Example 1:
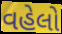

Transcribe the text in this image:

વહેલો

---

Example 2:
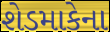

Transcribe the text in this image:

શેડમાકેના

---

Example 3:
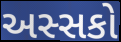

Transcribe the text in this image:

અસ્સકો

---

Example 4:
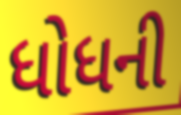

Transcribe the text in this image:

ધોધની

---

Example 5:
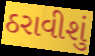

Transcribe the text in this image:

ઠરાવીશું